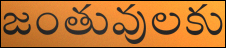
జంతువులకు